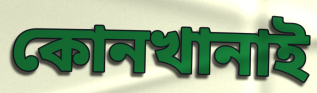
কোনখানাই